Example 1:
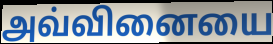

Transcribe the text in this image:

அவ்வினையை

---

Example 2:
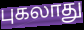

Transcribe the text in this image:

புகலாது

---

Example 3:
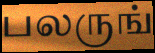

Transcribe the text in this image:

பலருங்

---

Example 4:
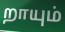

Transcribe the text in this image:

றாயும்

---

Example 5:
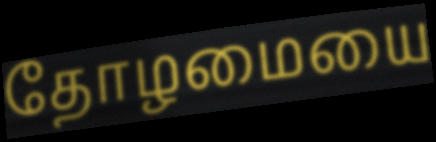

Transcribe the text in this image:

தோழமையை